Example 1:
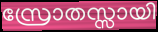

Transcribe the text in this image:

സ്രോതസ്സായി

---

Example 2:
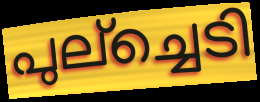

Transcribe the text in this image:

പുല്ച്ചെടി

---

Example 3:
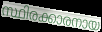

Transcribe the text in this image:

സ്ഥിരക്കാരനായ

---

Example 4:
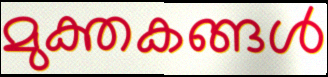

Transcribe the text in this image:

മുക്തകങ്ങൾ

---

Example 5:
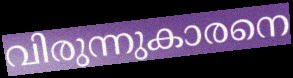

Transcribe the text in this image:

വിരുന്നുകാരനെ